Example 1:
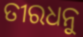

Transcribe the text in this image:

ତୀରଧନୁ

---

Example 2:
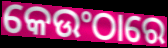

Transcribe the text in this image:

କେଉଂଠାରେ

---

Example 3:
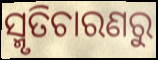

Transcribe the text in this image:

ସ୍ମୃତିଚାରଣରୁ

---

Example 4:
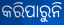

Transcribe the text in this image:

କରିପାରୁନି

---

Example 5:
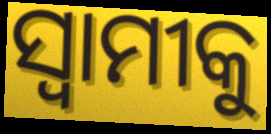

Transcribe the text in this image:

ସ୍ବାମୀକୁ